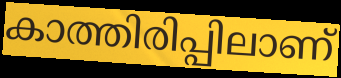
കാത്തിരിപ്പിലാണ്